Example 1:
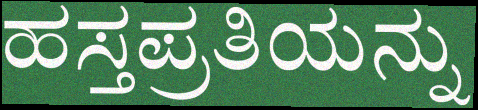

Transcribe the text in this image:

ಹಸ್ತಪ್ರತಿಯನ್ನು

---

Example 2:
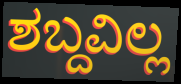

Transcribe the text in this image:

ಶಬ್ದವಿಲ್ಲ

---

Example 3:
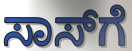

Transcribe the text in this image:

ಸಾಸ್‌ಗೆ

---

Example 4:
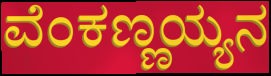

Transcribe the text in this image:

ವೆಂಕಣ್ಣಯ್ಯನ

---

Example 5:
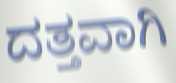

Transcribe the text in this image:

ದತ್ತವಾಗಿ